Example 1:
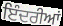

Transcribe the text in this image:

ਇੰਦਰੀਆਂ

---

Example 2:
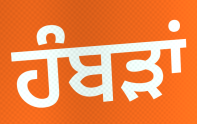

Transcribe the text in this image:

ਹੰਬੜਾਂ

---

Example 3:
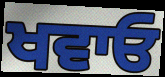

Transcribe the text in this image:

ਖਵਾਓ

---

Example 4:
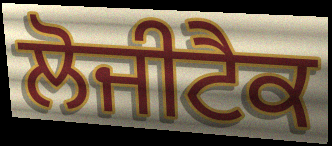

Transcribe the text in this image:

ਲੋਜੀਟੈਕ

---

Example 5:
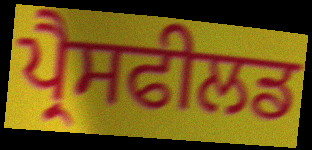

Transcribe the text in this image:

ਪ੍ਰੈਸਫੀਲਡ